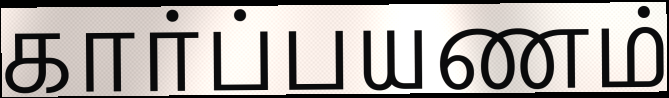
கார்ப்பயணம்